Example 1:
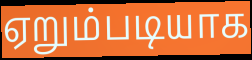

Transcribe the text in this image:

ஏறும்படியாக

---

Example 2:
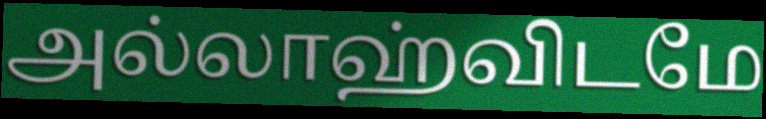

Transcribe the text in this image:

அல்லாஹ்விடமே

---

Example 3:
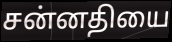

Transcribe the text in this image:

சன்னதியை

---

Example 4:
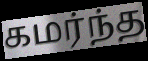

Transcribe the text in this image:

கமர்ந்த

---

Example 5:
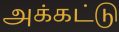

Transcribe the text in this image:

அக்கட்டு